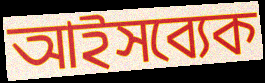
আইসব্যেক